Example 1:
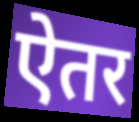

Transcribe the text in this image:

ऐतर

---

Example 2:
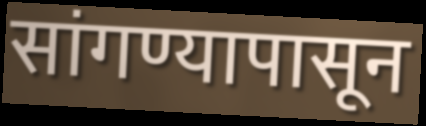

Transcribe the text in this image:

सांगण्यापासून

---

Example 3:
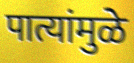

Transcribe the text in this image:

पात्यांमुळे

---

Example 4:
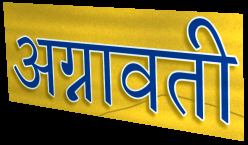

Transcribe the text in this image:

अग्नावती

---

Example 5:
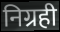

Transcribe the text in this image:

निग्रही